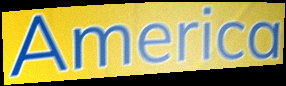
America